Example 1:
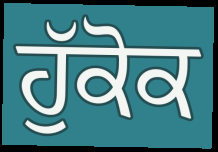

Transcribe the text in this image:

ਹੁੱਕੋਕ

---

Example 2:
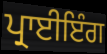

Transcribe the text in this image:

ਪ੍ਰਾਈਇੰਗ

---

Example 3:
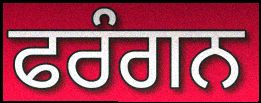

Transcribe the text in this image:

ਫਰੰਗਨ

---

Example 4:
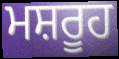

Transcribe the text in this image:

ਮਸ਼ਰੂਹ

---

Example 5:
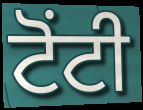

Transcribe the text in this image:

ਟੋਂਟੀ